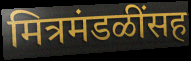
मित्रमंडळींसह